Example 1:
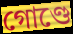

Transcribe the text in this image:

গোণ্ডে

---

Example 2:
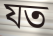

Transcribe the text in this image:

যত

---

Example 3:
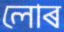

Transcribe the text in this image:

লোৰ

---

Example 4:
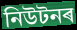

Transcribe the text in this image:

নিউটনৰ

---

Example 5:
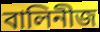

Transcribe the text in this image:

বালিনীজ